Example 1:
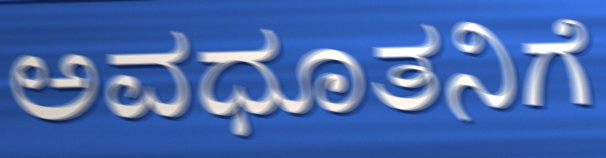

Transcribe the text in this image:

ಅವಧೂತನಿಗೆ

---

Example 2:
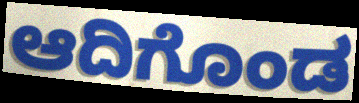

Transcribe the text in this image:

ಆದಿಗೊಂಡ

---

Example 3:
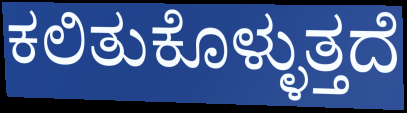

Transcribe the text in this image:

ಕಲಿತುಕೊಳ್ಳುತ್ತದೆ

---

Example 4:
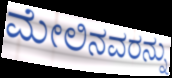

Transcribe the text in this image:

ಮೇಲಿನವರನ್ನು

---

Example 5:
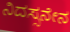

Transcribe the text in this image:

ನಿದಸ್ಸನೇನ